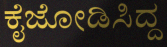
ಕೈಜೋಡಿಸಿದ್ದ